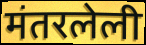
मंतरलेली